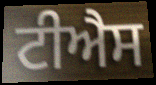
ਟੀਐਸ